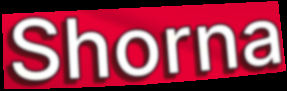
Shorna